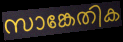
സാങ്കേതിക